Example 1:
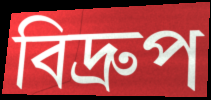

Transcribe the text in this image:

বিদ্ৰুপ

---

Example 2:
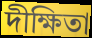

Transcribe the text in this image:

দীক্ষিতা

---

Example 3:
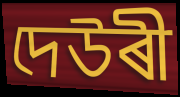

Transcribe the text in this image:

দেউৰী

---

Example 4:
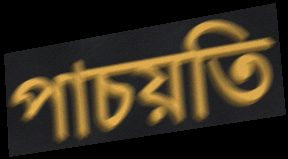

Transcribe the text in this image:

পাচয়তি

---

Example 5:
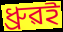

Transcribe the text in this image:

ধ্ৰুৱই